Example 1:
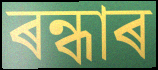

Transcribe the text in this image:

ৰন্ধাৰ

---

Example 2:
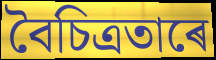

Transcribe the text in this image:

বৈচিত্ৰতাৰে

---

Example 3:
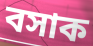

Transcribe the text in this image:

বসাক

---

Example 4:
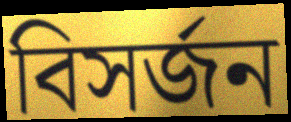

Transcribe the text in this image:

বিসৰ্জন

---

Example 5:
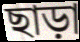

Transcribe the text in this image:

ছাড়া